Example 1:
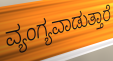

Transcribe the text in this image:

ವ್ಯಂಗ್ಯವಾಡುತ್ತಾರೆ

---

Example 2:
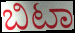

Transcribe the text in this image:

ಬಿಟಾ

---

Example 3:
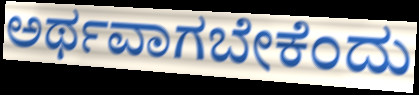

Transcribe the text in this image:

ಅರ್ಥವಾಗಬೇಕೆಂದು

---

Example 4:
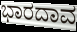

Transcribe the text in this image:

ಭಾರದಾವ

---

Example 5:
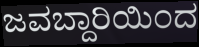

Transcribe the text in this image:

ಜವಬ್ದಾರಿಯಿಂದ